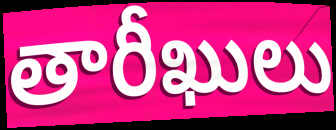
తారీఖులు